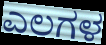
ಎಲಗಳ